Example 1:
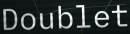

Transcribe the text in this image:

Doublet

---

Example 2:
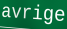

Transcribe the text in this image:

avrige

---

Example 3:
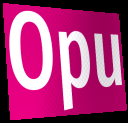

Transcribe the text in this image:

Opu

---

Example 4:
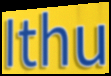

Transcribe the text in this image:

Ithu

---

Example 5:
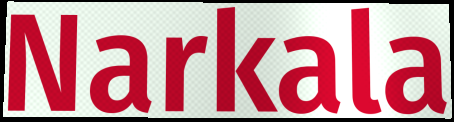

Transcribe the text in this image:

Narkala